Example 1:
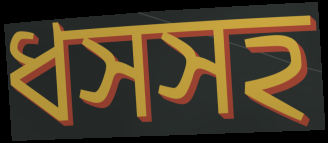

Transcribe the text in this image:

ধসসহ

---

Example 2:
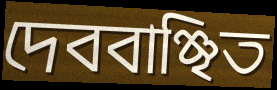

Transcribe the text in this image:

দেববাঞ্ছিত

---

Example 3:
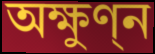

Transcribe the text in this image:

অক্ষুণ্ন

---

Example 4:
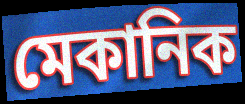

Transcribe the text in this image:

মেকানিক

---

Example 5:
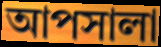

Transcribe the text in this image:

আপসালা